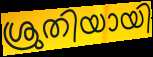
ശ്രുതിയായി